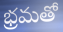
భ్రమతో